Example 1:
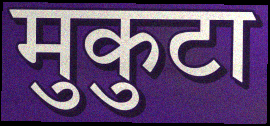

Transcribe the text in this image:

मुकुटा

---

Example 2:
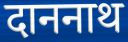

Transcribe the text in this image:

दाननाथ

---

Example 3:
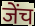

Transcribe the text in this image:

जेंच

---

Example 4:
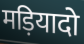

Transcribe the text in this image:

मड़ियादो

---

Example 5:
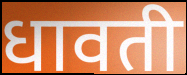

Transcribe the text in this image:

धावती